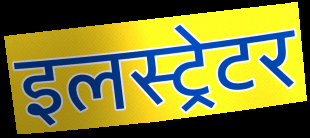
इलस्ट्रेटर